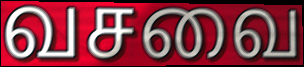
வசவை